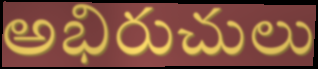
అభిరుచులు